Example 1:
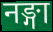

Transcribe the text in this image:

नङ्गा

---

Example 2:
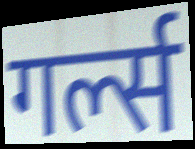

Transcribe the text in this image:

गर्ल्स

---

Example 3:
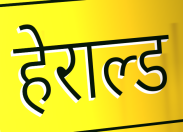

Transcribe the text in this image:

हेराल्ड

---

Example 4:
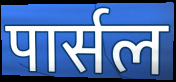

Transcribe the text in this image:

पार्सल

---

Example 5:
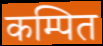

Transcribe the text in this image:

कम्पित